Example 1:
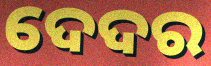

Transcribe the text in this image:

ଦେଦର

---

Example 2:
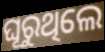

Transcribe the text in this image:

ଘୂରୁଥିଲେ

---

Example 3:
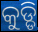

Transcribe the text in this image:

କୁଡ୍ଡି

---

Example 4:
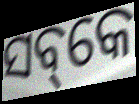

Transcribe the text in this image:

ସବ୍‌କେ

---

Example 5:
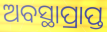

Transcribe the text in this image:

ଅବସ୍ଥାପ୍ରାପ୍ତ